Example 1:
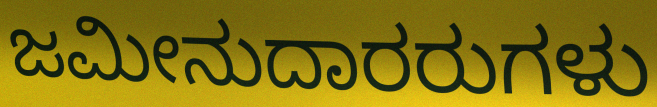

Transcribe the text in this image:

ಜಮೀನುದಾರರುಗಳು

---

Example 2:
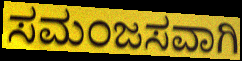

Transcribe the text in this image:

ಸಮಂಜಸವಾಗಿ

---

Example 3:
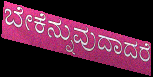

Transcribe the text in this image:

ಬೇಕೆನ್ನುವುದಾದರೆ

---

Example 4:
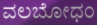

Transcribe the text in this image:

ವಲಬೋಧಂ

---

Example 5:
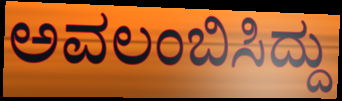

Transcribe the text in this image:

ಅವಲಂಬಿಸಿದ್ದು